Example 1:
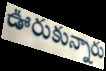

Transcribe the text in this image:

ఊరుకున్నారు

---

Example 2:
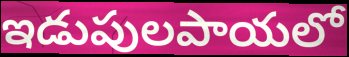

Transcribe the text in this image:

ఇడుపులపాయలో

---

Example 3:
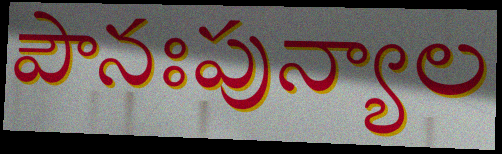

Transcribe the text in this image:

పౌనఃపున్యాల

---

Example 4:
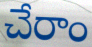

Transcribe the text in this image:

చేరాం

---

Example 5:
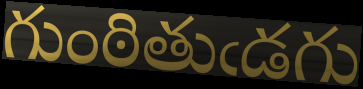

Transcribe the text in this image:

గుంఠితుఁడగు